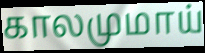
காலமுமாய்